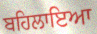
ਬਹਿਲਾਇਆ